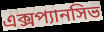
এক্সপ্যানসিভ